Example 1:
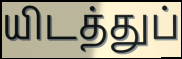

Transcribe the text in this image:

யிடத்துப்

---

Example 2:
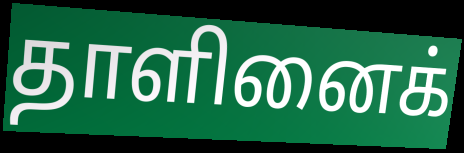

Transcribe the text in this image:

தாளினைக்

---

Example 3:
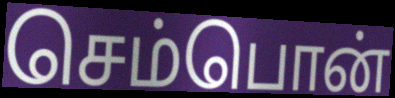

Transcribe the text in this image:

செம்பொன்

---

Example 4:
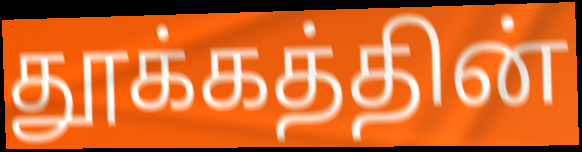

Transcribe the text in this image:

தூக்கத்தின்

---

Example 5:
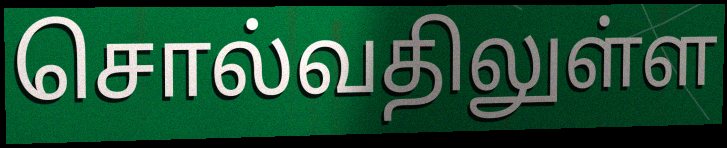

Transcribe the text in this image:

சொல்வதிலுள்ள